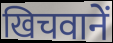
खिचवानें